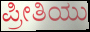
ಪ್ರೀತಿಯು